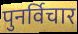
पुनर्विचार